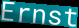
Ernst